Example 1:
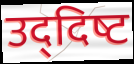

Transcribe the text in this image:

उद्‌दिष्‍ट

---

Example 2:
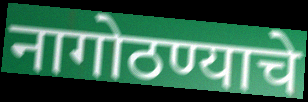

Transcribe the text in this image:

नागोठण्याचे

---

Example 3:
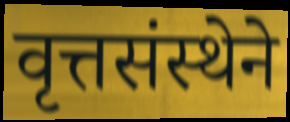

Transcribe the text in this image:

वृत्तसंस्थेने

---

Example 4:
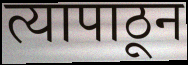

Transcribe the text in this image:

त्यापाठून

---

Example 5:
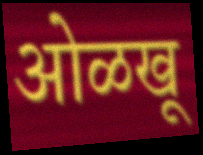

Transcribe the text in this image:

ओळखू